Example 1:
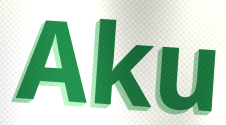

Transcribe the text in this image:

Aku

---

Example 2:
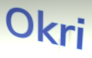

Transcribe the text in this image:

Okri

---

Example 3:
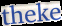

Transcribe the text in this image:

theke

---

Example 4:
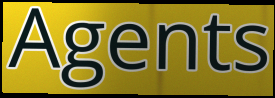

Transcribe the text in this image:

Agents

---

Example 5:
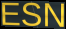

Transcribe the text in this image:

ESN